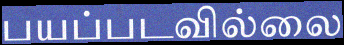
பயப்படவில்லை